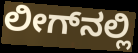
ಲೀಗ್‌ನಲ್ಲಿ